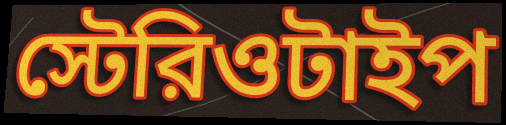
স্টেরিওটাইপ